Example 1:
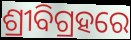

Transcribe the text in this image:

ଶ୍ରୀବିଗ୍ରହରେ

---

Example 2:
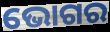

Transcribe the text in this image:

ଭୋଗର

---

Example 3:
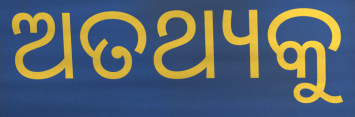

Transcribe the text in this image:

ଅତଥ୍ୟକୁ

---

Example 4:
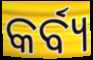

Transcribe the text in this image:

କର୍ବ୍ୟ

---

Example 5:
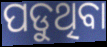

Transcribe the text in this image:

ପଡୁଥିବା